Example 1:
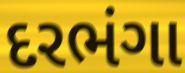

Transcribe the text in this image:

દરભંગા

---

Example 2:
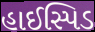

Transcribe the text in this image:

હાઈસ્પિડ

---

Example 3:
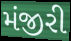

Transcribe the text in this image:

મંજીરી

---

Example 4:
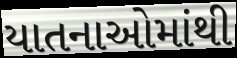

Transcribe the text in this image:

યાતનાઓમાંથી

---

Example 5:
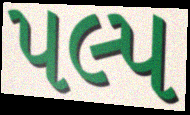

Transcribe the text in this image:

પલ્પ